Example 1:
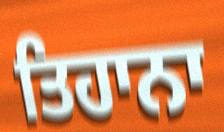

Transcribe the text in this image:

ਤਿਹਾਨਾ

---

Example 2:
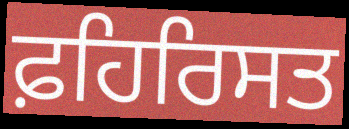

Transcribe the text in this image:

ਫ਼ਹਿਰਿਸਤ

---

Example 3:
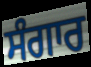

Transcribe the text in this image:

ਸੰਗਾਰ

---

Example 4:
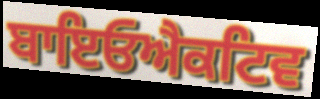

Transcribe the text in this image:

ਬਾਇਓਐਕਟਿਵ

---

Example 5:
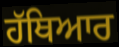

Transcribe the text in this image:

ਹੱਥਿਆਰ